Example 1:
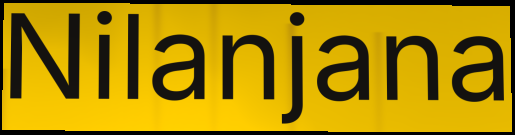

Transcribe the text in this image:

Nilanjana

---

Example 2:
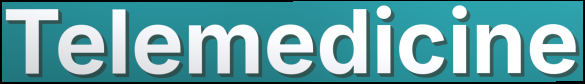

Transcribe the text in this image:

Telemedicine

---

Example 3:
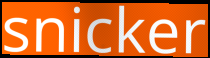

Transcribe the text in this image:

snicker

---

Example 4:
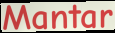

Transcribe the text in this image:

Mantar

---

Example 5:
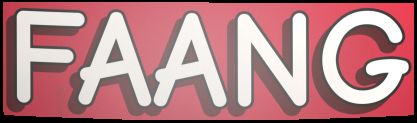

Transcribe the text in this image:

FAANG